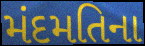
મંદમતિના